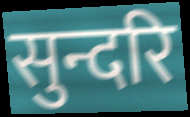
सुन्दरि